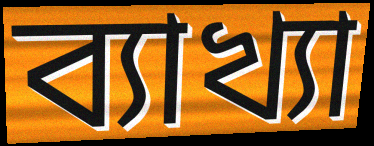
ব্যাখ্যা